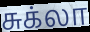
சுக்லா